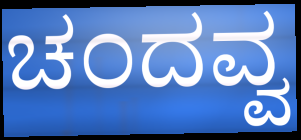
ಚಂದವ್ವ